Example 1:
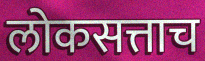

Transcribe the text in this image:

लोकसत्ताच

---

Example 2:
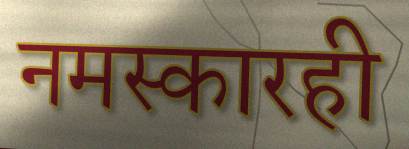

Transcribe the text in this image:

नमस्कारही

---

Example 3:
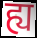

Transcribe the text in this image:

ह्य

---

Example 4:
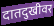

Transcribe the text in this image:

दातदुखीवर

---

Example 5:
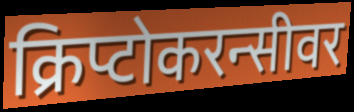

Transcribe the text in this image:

क्रिप्टोकरन्सीवर